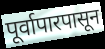
पूर्वापारपासून